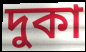
দুকা